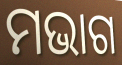
ମଭାଗ